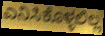
ಎನಿಸಿಕೊಳ್ಳಲಿಲ್ಲ